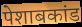
पेशाबकांड